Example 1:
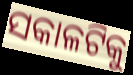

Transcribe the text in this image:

ସକାଳଟିକୁ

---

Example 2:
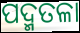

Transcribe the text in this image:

ପଦ୍ମତଳା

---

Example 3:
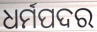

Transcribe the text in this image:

ଧର୍ମପଦର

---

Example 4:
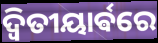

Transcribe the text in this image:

ଦ୍ଵିତୀୟାର୍ଵରେ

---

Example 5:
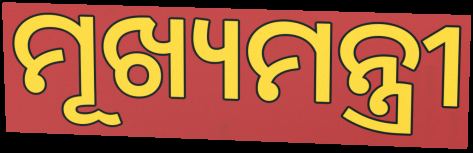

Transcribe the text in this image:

ମୂଖ୍ୟମନ୍ତ୍ରୀ